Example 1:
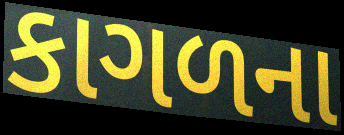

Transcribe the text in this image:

કાગળના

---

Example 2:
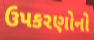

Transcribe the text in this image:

ઉપકરણોનો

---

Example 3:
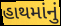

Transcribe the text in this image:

હાથમાંનું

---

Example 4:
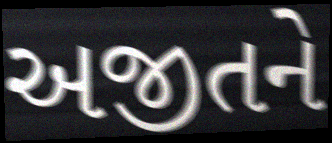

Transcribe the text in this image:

અજીતને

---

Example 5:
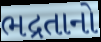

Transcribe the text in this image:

ભદ્રતાનો